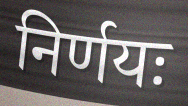
निर्णयः